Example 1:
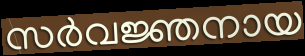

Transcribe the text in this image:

സർവജ്ഞനായ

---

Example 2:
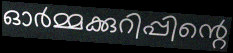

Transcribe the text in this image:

ഓർമ്മക്കുറിപ്പിന്റെ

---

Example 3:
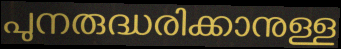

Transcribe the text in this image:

പുനരുദ്ധരിക്കാനുള്ള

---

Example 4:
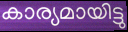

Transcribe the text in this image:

കാര്യമായിട്ടു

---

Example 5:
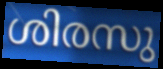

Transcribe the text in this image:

ശിരസു